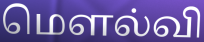
மௌல்வி